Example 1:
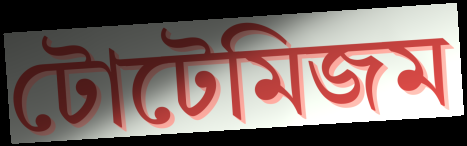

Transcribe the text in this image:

টোটেমিজম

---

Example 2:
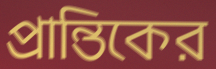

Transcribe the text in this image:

প্রান্তিকের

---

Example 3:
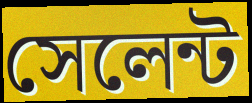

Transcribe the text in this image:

সেলেন্ট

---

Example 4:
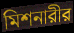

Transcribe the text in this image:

মিশনারীর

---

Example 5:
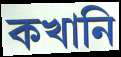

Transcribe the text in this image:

কখানি